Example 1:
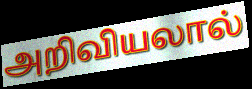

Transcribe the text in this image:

அறிவியலால்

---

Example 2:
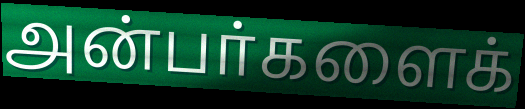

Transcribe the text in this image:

அன்பர்களைக்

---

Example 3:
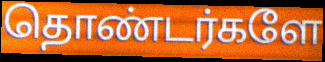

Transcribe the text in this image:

தொண்டர்களே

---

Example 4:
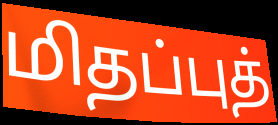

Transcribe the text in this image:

மிதப்புத்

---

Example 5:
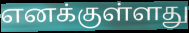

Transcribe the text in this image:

எனக்குள்ளது